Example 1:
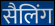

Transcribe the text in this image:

सैलिंग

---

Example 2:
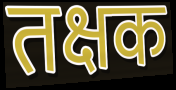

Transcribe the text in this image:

तक्षक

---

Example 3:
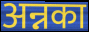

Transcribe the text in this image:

अन्नका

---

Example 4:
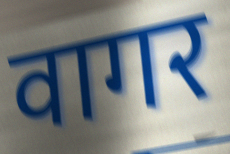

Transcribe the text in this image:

वागर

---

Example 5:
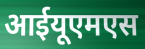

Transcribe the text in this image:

आईयूएमएस